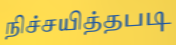
நிச்சயித்தபடி